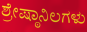
ಶ್ರೇಷ್ಠಾನಿಲಗಳು